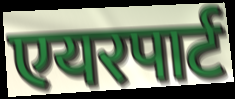
एयरपार्ट